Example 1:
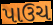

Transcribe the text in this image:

પાઉચ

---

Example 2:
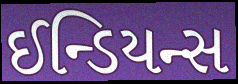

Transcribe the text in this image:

ઈન્ડિયન્સ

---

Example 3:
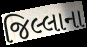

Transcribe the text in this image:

જિલ્લાના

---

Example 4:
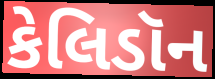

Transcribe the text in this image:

કેલિડૉન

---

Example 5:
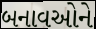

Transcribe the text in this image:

બનાવઓને